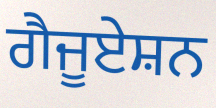
ਗੈਜੂਏਸ਼ਨ